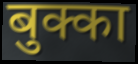
बुक्का